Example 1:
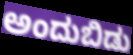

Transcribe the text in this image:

ಅಂದುಬಿಡು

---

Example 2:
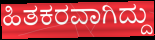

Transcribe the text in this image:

ಹಿತಕರವಾಗಿದ್ದು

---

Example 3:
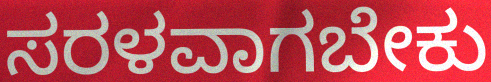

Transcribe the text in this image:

ಸರಳವಾಗಬೇಕು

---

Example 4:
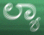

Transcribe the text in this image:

ಲ್ಯಾ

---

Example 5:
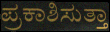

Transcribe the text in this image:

ಪ್ರಕಾಶಿಸುತ್ತಾ